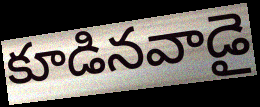
కూడినవాడై